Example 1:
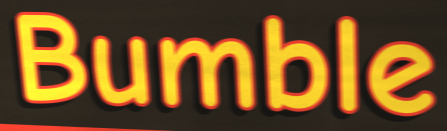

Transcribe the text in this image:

Bumble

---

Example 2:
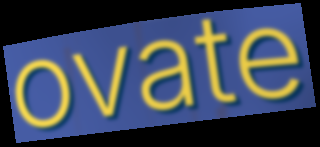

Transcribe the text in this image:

ovate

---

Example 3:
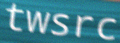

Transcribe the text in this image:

twsrc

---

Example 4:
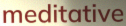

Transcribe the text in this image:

meditative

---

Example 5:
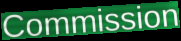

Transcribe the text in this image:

Commission